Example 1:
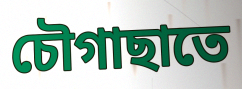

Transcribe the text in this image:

চৌগাছাতে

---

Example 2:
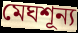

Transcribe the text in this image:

মেঘশূন্য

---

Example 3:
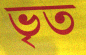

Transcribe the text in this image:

ভৃত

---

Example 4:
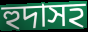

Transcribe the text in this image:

হুদাসহ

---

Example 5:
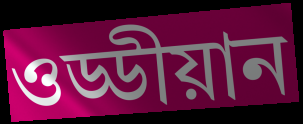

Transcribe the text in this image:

ওড্ডীয়ান